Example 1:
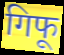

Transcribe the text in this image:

गिफू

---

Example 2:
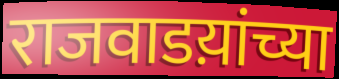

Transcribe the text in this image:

राजवाडय़ांच्या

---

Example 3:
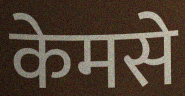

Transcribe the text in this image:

केमसे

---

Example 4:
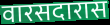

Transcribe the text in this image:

वारसदारास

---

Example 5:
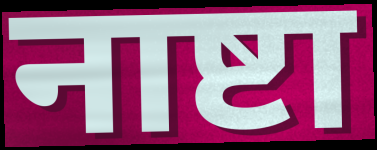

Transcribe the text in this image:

नाष्टा